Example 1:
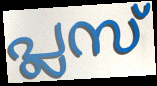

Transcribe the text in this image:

പ്ലസ്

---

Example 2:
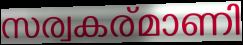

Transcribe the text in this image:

സര്വകര്മാണി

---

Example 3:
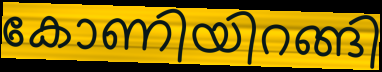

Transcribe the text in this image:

കോണിയിറങ്ങി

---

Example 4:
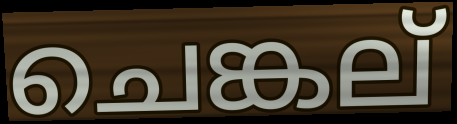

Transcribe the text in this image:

ചെങ്കല്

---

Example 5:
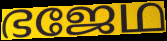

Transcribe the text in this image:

ഭജേഥ